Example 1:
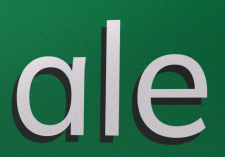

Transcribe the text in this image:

ale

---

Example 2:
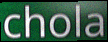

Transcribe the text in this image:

chola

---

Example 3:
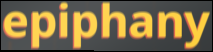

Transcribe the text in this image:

epiphany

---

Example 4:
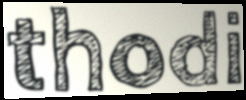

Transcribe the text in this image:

thodi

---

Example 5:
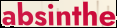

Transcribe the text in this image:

absinthe